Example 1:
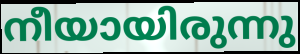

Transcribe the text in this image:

നീയായിരുന്നു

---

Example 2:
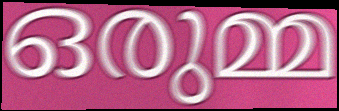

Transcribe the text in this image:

ഒരുമ്മ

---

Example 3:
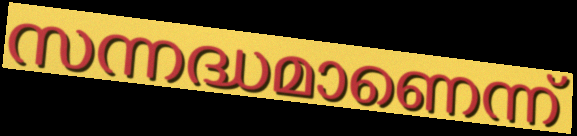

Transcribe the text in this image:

സന്നദ്ധമാണെന്ന്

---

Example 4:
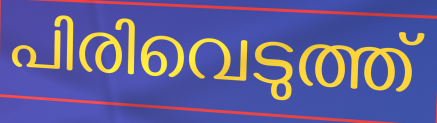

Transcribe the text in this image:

പിരിവെടുത്ത്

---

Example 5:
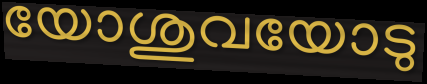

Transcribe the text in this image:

യോശുവയോടു